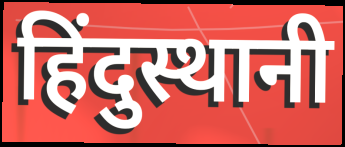
हिंदुस्थानी